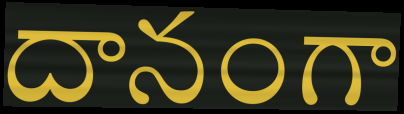
దానంగా